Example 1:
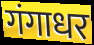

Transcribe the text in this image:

गंगाधर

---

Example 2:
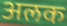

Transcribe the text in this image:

अलक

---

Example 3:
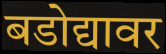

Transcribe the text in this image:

बडोद्यावर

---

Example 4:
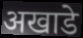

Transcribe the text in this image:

अखाडे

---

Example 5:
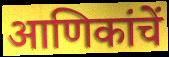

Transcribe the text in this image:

आणिकांचें